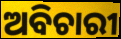
ଅବିଚାରୀ